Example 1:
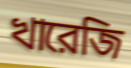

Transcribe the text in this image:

খারেজি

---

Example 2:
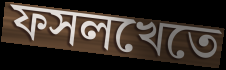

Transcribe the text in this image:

ফসলখেতে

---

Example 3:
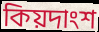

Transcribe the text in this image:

কিয়দাংশ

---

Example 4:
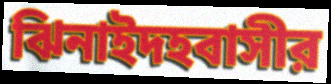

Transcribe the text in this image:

ঝিনাইদহবাসীর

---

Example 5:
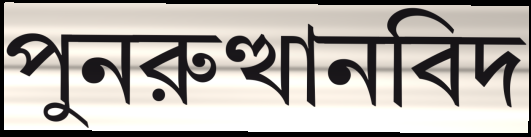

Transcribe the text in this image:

পুনরুত্থানবিদ